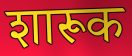
शारूक